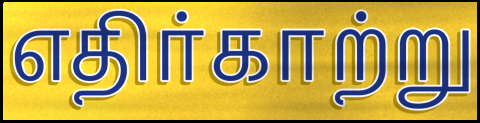
எதிர்காற்று